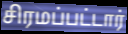
சிரமப்பட்டார்